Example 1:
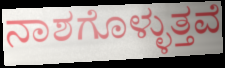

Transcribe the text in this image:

ನಾಶಗೊಳ್ಳುತ್ತವೆ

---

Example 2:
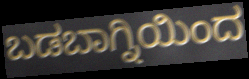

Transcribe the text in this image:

ಬಡಬಾಗ್ನಿಯಿಂದ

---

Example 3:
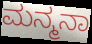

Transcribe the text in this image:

ಮನ್ಮನಾ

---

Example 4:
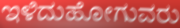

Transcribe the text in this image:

ಇಳಿದುಹೋಗುವರು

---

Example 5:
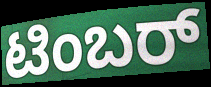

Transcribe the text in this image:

ಟಿಂಬರ್